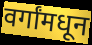
वर्गांमधून